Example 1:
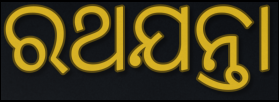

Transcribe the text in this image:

ରଥଯନ୍ତା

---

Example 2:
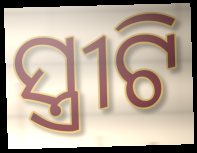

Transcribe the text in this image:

ସ୍ତ୍ରୀଟି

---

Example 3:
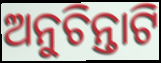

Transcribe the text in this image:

ଅନୁଚିନ୍ତାଟି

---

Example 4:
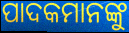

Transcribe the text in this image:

ପାଦକମାନଙ୍କୁ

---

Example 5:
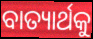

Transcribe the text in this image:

ବାତ୍ୟାର୍ଥକୁ